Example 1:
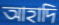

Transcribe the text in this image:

আহাদি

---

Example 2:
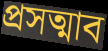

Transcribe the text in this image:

প্রসত্মাব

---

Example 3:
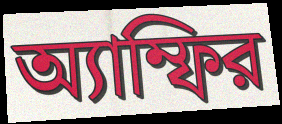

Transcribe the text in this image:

অ্যাম্ফির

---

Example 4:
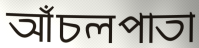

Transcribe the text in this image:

আঁচলপাতা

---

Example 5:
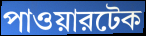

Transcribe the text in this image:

পাওয়ারটেক